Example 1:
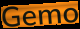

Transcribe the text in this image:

Gemo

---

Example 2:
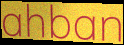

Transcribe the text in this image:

ahban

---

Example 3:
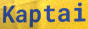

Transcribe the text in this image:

Kaptai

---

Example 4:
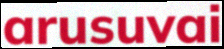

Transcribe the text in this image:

arusuvai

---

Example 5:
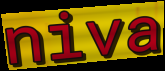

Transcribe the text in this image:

niva